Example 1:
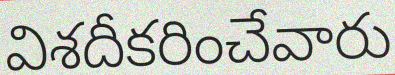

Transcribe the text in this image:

విశదీకరించేవారు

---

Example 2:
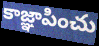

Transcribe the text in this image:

కాజ్ఞాపించు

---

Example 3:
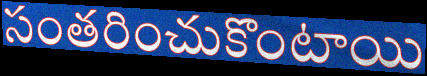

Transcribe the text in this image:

సంతరించుకొంటాయి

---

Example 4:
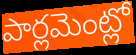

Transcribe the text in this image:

పార్లమెంట్లో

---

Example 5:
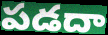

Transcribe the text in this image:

పడదా